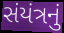
સંયંત્રનું